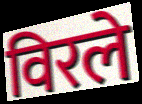
विरले